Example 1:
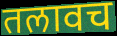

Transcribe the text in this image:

तलावच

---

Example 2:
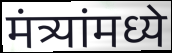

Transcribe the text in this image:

मंत्र्यांमध्ये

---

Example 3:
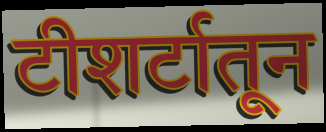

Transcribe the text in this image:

टीशर्टातून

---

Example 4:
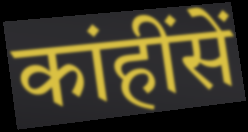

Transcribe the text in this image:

कांहींसें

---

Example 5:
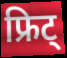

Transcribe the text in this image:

फ्रिट्